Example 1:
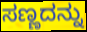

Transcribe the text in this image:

ಸಣ್ಣದನ್ನು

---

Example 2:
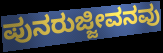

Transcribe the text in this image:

ಪುನರುಜ್ಜೀವನವು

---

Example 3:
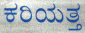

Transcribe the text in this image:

ಕರಿಯತ್ತ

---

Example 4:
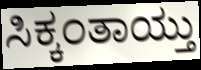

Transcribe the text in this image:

ಸಿಕ್ಕಂತಾಯ್ತು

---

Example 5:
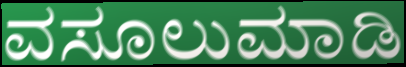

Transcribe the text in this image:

ವಸೂಲುಮಾಡಿ